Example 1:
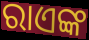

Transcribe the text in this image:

ରାଏଙ୍କ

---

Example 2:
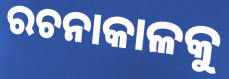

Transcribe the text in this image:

ରଚନାକାଳକୁ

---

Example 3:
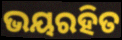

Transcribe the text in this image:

ଭୟରହିତ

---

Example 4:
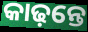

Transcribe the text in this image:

କାଢ଼ନ୍ତେ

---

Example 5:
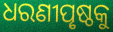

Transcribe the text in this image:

ଧରଣୀପୃଷ୍ଠକୁ